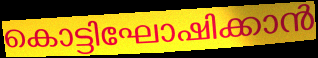
കൊട്ടിഘോഷിക്കാൻ